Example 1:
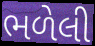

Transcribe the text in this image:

ભળેલી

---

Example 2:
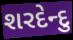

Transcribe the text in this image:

શરદેન્દુ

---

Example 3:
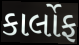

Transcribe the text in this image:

કાર્લોફ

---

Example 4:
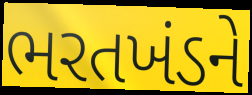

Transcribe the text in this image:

ભરતખંડને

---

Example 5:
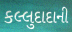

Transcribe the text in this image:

કલ્લુદાદાની